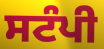
ਸਟੰਪੀ